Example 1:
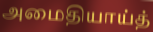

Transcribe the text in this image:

அமைதியாய்த்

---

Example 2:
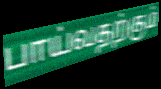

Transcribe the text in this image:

பாய்வதற்கும்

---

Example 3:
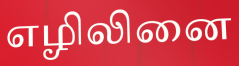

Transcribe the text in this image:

எழிலினை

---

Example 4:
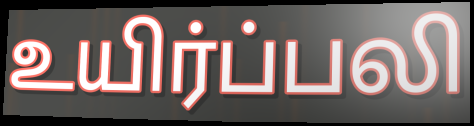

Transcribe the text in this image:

உயிர்ப்பலி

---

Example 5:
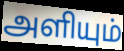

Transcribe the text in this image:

அளியும்